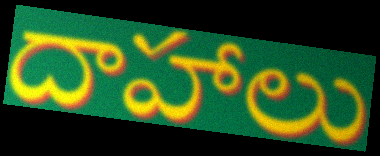
దాహాలు